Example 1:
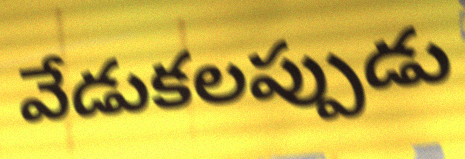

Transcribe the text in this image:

వేడుకలప్పుడు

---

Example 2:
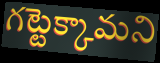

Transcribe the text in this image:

గట్టెక్కామని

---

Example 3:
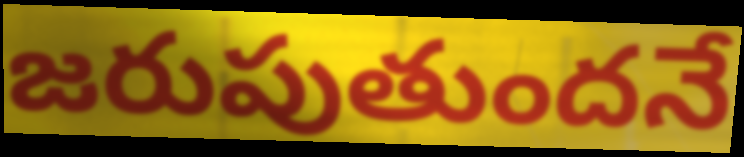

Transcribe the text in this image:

జరుపుతుందనే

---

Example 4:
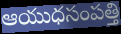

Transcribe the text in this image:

ఆయుధసంపత్తి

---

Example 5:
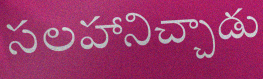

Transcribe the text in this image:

సలహానిచ్చాడు